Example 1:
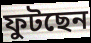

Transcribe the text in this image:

ফুটছেন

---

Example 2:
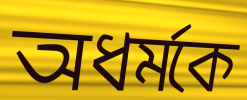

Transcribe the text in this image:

অধর্মকে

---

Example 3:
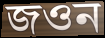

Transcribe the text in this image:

জওন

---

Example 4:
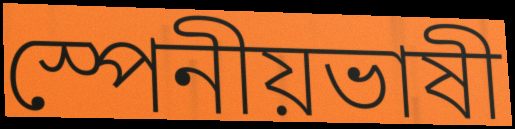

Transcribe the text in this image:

স্পেনীয়ভাষী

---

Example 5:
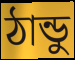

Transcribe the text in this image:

ঠান্ডু